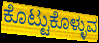
ಕೊಟ್ಟುಕೊಳ್ಳುವ